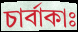
চার্বাকাঃ